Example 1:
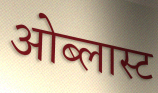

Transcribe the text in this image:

ओब्लास्ट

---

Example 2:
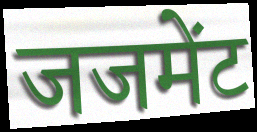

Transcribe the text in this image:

जजमेंट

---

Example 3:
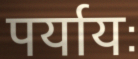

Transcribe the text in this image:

पर्यायः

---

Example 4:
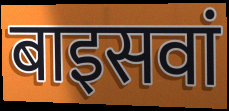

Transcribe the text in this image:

बाइसवां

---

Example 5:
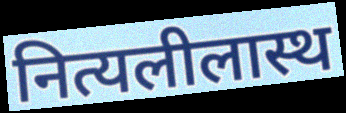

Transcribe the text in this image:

नित्यलीलास्थ